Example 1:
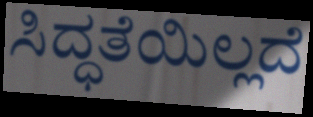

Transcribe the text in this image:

ಸಿದ್ಧತೆಯಿಲ್ಲದೆ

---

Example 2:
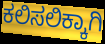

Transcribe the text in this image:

ಕಲಿಸಲಿಕ್ಕಾಗಿ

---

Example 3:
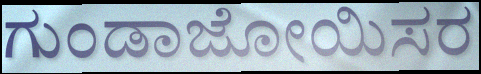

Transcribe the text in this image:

ಗುಂಡಾಜೋಯಿಸರ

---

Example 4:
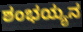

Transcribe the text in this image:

ಶಂಭಯ್ಯನ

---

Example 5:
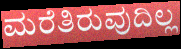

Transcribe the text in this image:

ಮರೆತಿರುವುದಿಲ್ಲ